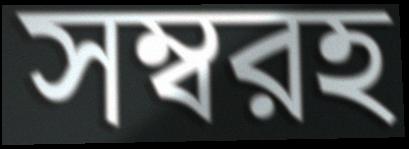
সম্বরহ